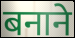
बनाने